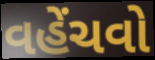
વહેંચવો